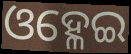
ଓହ୍ଳେଇ